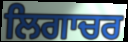
ਲਿਗਾਚਰ